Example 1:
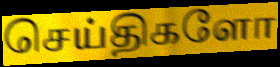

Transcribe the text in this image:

செய்திகளோ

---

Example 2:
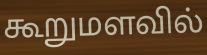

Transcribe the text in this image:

கூறுமளவில்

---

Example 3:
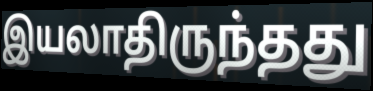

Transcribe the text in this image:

இயலாதிருந்தது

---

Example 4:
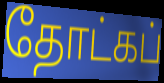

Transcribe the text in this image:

தோட்கப்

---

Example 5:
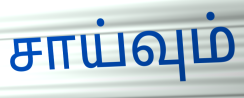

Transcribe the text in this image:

சாய்வும்